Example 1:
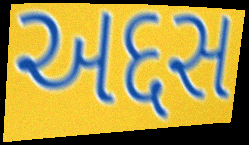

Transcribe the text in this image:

અદ્દસ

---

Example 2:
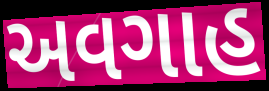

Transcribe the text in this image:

અવગાહ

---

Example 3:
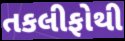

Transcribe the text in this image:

તકલીફોથી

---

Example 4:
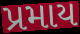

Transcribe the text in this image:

પ્રમાય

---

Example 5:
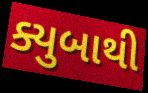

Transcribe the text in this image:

ક્યુબાથી